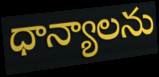
ధాన్యాలను